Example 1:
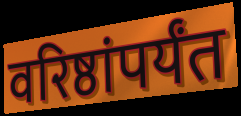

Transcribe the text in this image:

वरिष्ठांपर्यंत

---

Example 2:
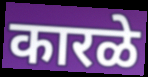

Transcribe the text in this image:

कारळे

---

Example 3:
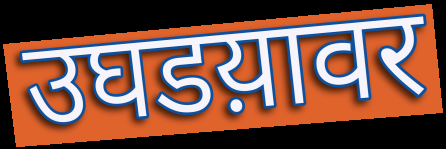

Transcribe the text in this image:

उघडय़ावर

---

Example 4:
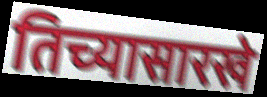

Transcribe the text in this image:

तिच्यासारखे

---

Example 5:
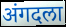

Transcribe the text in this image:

अंगदला